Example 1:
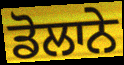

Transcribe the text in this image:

ਡੋਲਾਨੇ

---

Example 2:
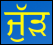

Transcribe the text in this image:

ਜੁੱੜ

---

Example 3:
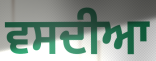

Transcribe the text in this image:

ਵਸਦੀਆ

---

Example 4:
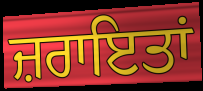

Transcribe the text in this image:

ਜ਼ਰਾਇਤਾਂ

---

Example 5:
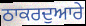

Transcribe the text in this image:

ਠਾਕਰਦੁਆਰੇ